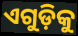
ଏଗୁଡ଼ିକୁ